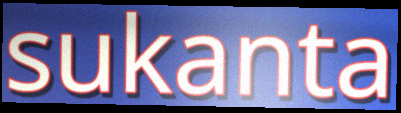
sukanta